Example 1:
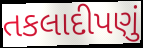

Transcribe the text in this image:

તકલાદીપણું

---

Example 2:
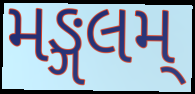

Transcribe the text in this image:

મઙ્ગલમ્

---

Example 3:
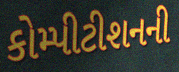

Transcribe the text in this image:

કોમ્પીટીશનની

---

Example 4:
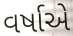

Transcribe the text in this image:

વર્ષાએ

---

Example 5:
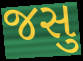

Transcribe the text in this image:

જસુ